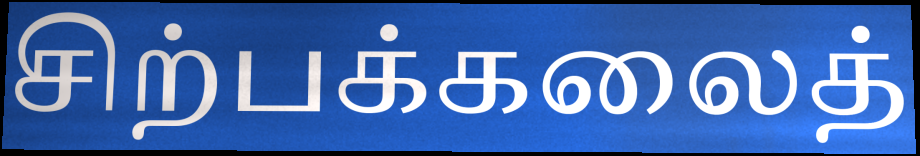
சிற்பக்கலைத்